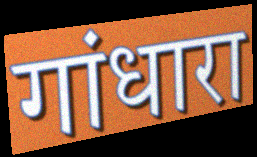
गांधारा